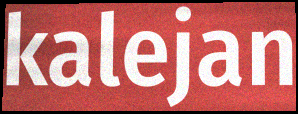
kalejan